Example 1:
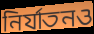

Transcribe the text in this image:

নির্যাতনও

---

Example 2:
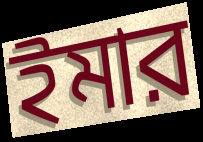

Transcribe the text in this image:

ইমার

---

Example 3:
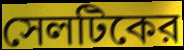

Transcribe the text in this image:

সেলটিকের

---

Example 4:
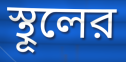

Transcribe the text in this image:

স্থূলের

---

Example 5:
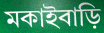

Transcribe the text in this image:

মকাইবাড়ি